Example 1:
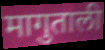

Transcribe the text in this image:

मागुताली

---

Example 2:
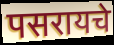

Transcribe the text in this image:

पसरायचे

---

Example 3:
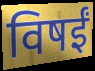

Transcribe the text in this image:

विषईं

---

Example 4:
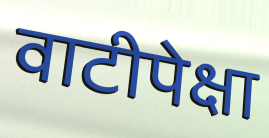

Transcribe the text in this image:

वाटीपेक्षा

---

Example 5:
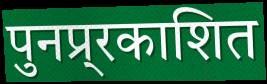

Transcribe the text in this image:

पुनप्र्रकाशित